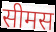
सीमस